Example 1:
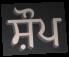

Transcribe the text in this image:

ਸ਼ੌਪ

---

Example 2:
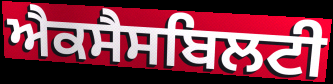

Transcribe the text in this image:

ਐਕਸੈਸਬਿਲਟੀ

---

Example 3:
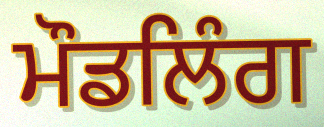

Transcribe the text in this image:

ਮੌਡਲਿੰਗ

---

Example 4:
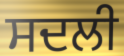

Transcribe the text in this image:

ਸਦਲੀ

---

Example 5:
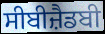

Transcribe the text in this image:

ਸੀਬੀਜ਼ੈਡਬੀ